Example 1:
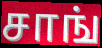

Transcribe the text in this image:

சாங்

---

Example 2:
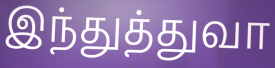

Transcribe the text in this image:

இந்துத்துவா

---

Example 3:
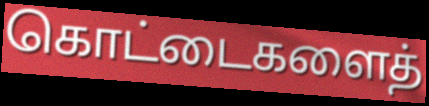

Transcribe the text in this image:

கொட்டைகளைத்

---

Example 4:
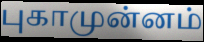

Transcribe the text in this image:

புகாமுன்னம்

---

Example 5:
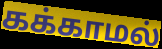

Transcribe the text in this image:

கக்காமல்